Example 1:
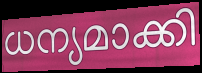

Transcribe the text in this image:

ധന്യമാക്കി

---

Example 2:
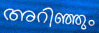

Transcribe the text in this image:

അറിഞ്ഞും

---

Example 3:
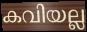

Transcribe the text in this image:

കവിയല്ല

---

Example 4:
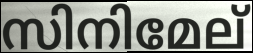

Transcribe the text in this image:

സിനിമേല്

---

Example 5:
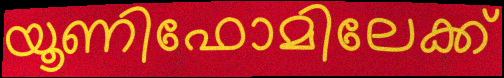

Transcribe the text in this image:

യൂണിഫോമിലേക്ക്